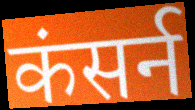
कंसर्न